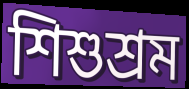
শিশুশ্রম